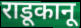
राडूकानू